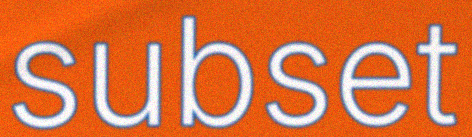
subset